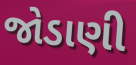
જોડાણી